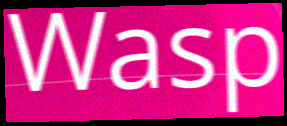
Wasp